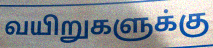
வயிறுகளுக்கு